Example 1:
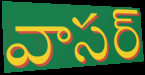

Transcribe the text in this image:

వాసర్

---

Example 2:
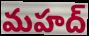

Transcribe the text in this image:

మహద్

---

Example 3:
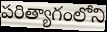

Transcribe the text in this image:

పరిత్యాగంలోని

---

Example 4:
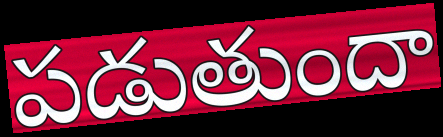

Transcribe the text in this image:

పడుతుందా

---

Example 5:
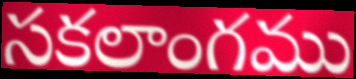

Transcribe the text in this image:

సకలాంగము